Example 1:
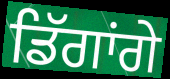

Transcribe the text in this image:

ਡਿੱਗਾਂਗੇ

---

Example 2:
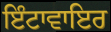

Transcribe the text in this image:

ਇੰਟਾਵਾਇਰ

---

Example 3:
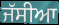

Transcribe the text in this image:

ਜੱਸੀਆ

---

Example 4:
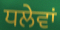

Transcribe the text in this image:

ਧਲੇਵਾਂ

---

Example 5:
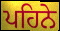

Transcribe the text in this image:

ਪਹਿਨੇ